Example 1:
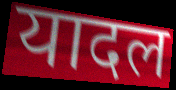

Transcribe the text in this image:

यादल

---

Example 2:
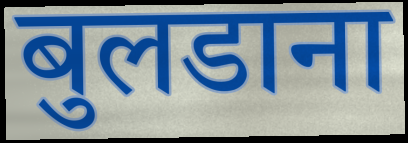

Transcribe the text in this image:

बुलडाना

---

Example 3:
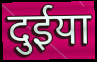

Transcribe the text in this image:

दुईया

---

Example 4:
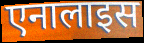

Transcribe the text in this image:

एनालाइस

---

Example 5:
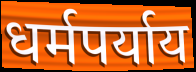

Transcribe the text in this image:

धर्मपर्याय